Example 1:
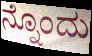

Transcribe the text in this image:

ನ್ನೊಂದು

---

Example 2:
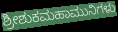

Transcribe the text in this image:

ಶ್ರೀಶುಕಮಹಾಮುನಿಗಳು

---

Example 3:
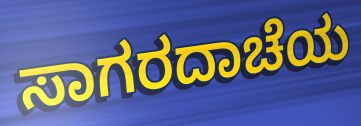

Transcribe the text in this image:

ಸಾಗರದಾಚೆಯ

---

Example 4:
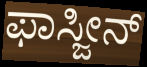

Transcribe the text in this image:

ಫಾಸ್ಜೀನ್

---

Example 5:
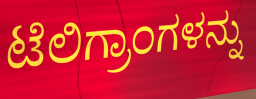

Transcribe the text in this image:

ಟೆಲಿಗ್ರಾಂಗಳನ್ನು